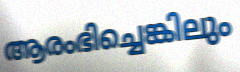
ആരംഭിച്ചെങ്കിലും